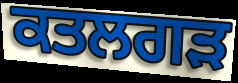
ਕਤਲਗੜ